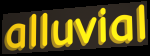
alluvial